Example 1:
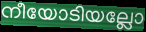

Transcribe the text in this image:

നീയോടിയല്ലോ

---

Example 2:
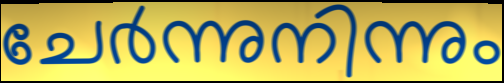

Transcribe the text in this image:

ചേർന്നുനിന്നും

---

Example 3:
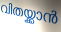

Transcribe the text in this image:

വിതയ്ക്കാൻ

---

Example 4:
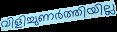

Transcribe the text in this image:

വിളിച്ചുണർത്തിയില്ല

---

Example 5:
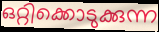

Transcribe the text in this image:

ഒറ്റിക്കൊടുക്കുന്ന